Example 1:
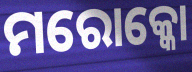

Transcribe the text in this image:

ମରୋକ୍କୋ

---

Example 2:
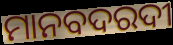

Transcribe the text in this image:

ମାନବଦରଦୀ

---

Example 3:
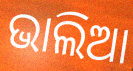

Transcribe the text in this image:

ଭାଲିଆ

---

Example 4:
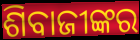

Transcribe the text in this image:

ଶିବାଜୀଙ୍କର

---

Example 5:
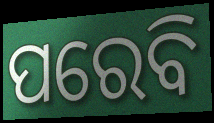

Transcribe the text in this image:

ପରେବି